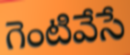
గెంటివేసే